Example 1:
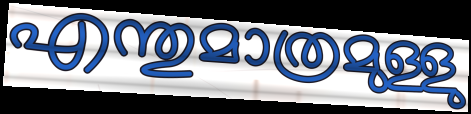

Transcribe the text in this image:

എന്തുമാത്രമുള്ളു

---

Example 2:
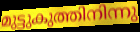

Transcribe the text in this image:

മുട്ടുകുത്തിനിന്നു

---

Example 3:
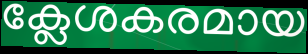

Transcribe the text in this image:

ക്ലേശകരമായ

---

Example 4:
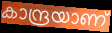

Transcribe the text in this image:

കാന്ദ്രയാണ്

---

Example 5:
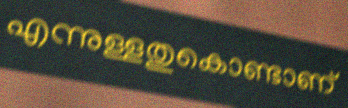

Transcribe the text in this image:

എന്നുള്ളതുകൊണ്ടാണ്